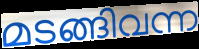
മടങ്ങിവന്ന